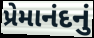
પ્રેમાનંદનું